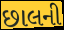
છાલની